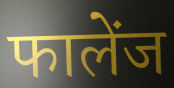
फालेंज